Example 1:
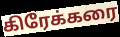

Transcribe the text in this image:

கிரேக்கரை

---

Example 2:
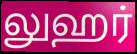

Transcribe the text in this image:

லுஹர்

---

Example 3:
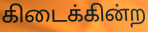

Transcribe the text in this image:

கிடைக்கின்ற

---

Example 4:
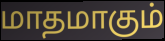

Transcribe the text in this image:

மாதமாகும்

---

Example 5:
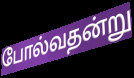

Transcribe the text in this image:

போல்வதன்று